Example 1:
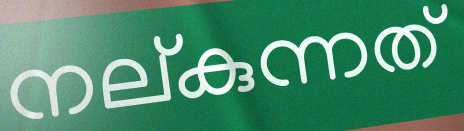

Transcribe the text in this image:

നല്കുന്നത്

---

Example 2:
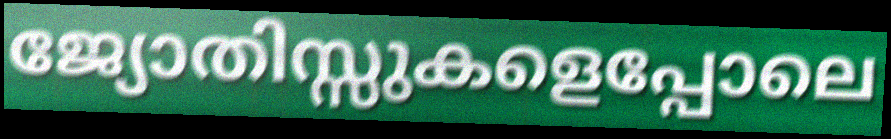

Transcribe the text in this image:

ജ്യോതിസ്സുകളെപ്പോലെ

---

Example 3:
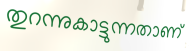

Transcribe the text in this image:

തുറന്നുകാട്ടുന്നതാണ്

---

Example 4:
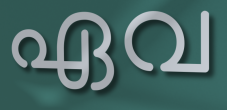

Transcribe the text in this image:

ഏവ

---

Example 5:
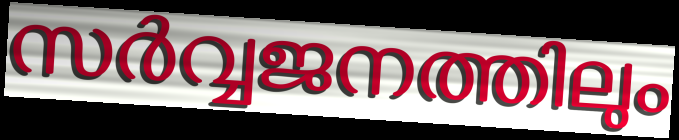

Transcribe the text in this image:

സർവ്വജനത്തിലും